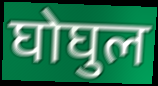
घोघुल